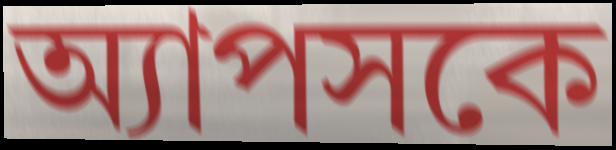
অ্যাপসকে